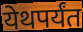
येथपर्यंत